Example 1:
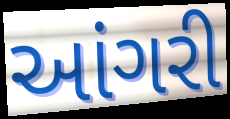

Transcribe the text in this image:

આંગરી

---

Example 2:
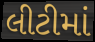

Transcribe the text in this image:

લીટીમાં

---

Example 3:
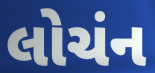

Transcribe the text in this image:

લોચંન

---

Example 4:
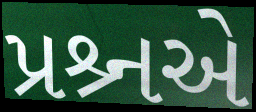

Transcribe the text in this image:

પ્રશ્ર્નએ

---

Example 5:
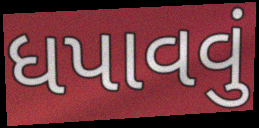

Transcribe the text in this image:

ધપાવવું